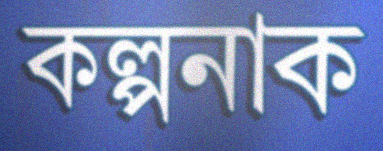
কল্পনাক